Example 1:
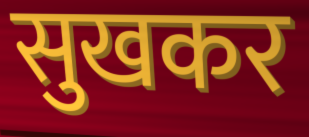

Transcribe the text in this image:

सुखकर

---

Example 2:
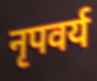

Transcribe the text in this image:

नृपवर्य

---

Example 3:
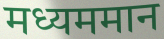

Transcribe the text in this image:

मध्यममान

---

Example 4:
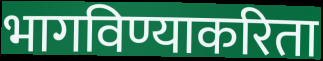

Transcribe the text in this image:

भागविण्याकरिता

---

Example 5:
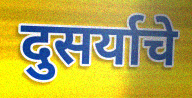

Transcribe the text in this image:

दुसर्याचे